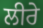
ਲੀਰੇ